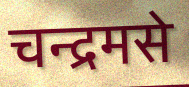
चन्द्रमसे